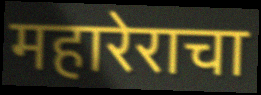
महारेराचा